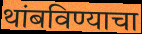
थांबविण्याचा